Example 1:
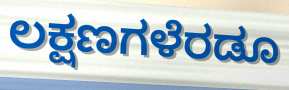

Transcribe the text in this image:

ಲಕ್ಷಣಗಳೆರಡೂ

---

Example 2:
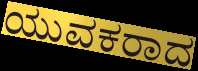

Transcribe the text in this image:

ಯುವಕರಾದ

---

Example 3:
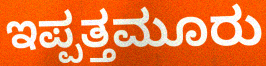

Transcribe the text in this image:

ಇಪ್ಪತ್ತಮೂರು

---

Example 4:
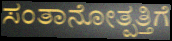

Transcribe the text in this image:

ಸಂತಾನೋತ್ಪತ್ತಿಗೆ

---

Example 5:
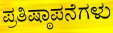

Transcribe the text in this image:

ಪ್ರತಿಷ್ಠಾಪನೆಗಳು